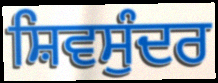
ਸ਼ਿਵਸੁੰਦਰ